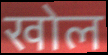
खोल